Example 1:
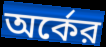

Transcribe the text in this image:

অর্কের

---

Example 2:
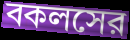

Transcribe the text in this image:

বকলসের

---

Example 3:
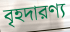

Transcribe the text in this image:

বৃহদারণ্য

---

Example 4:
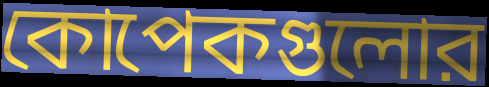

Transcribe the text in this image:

কোপেকগুলোর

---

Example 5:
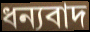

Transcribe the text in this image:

ধন্যবাদ